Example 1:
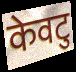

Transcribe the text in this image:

केवटु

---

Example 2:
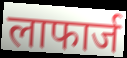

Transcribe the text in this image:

लाफार्ज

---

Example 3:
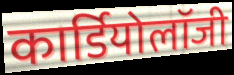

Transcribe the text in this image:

कार्डियोलॉजी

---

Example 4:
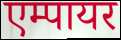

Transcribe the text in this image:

एम्पायर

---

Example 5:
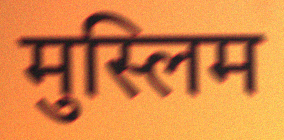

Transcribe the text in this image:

मुस्‍लिम